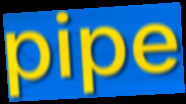
pipe